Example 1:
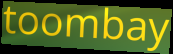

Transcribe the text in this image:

toombay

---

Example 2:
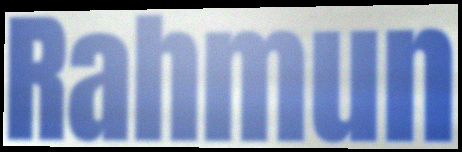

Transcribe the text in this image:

Rahmun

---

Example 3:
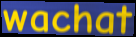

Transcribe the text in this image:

wachat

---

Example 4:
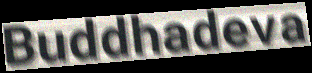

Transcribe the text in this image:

Buddhadeva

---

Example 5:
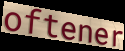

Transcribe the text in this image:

oftener